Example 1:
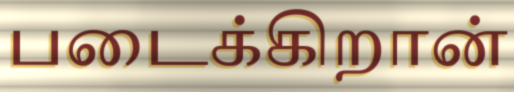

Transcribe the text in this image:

படைக்கிறான்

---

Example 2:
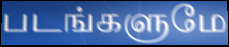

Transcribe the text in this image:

படங்களுமே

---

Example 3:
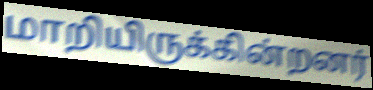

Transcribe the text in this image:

மாறியிருக்கின்றனர்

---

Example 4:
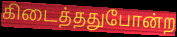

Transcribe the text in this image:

கிடைத்ததுபோன்ற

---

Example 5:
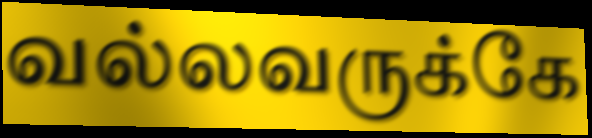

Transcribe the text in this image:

வல்லவருக்கே